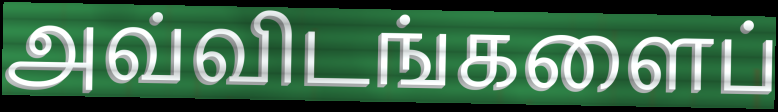
அவ்விடங்களைப்